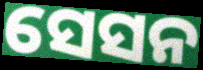
ସେସନ